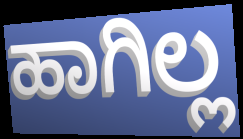
ಹಾಗಿಲ್ಲ